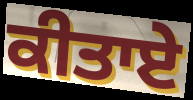
ਕੀਤਾਏ